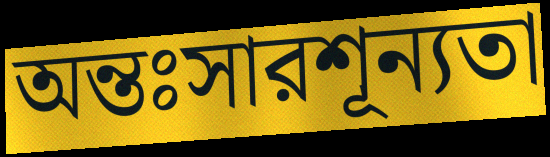
অন্তঃসারশূন্যতা